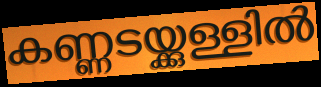
കണ്ണടയ്ക്കുള്ളിൽ